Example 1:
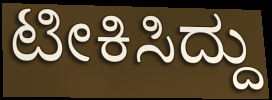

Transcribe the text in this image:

ಟೀಕಿಸಿದ್ದು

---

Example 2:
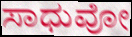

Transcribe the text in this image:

ಸಾಧುವೋ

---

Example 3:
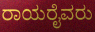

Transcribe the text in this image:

ರಾಯರೈವರು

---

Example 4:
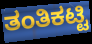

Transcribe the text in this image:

ತಂತಿಕಟ್ಟಿ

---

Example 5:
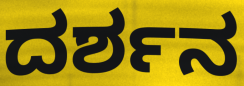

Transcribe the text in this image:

ದರ್ಶನ